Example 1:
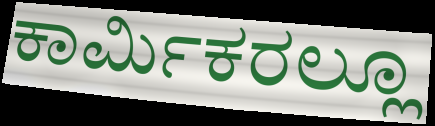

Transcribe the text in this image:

ಕಾರ್ಮಿಕರಲ್ಲೂ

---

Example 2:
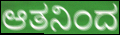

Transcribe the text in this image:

ಆತನಿಂದ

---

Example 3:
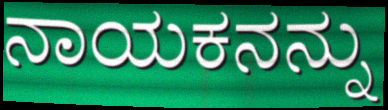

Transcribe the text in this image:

ನಾಯಕನನ್ನು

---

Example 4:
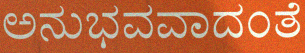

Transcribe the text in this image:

ಅನುಭವವಾದಂತೆ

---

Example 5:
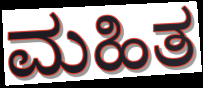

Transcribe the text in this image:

ಮಹಿತ